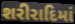
શરીરાદિમાં